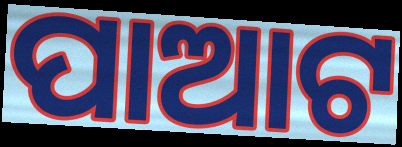
ପାଆଟ